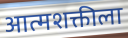
आत्मशक्तीला